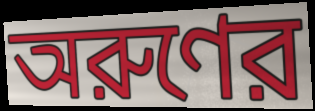
অরুণের